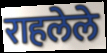
राहलेले